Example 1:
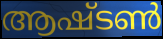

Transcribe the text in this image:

ആഷ്ടൺ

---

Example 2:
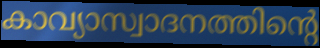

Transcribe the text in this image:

കാവ്യാസ്വാദനത്തിന്റെ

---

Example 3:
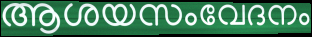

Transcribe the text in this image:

ആശയസംവേദനം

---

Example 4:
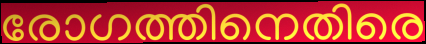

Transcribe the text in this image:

രോഗത്തിനെതിരെ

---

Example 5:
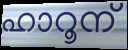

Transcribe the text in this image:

ഹാറൂന്